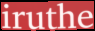
iruthe